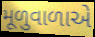
મૂળુવાળાએ